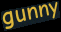
gunny